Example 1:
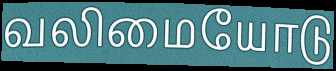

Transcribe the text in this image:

வலிமையோடு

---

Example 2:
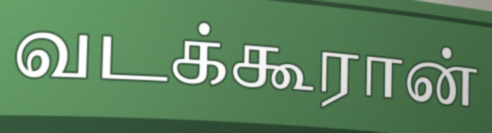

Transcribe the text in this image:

வடக்கூரான்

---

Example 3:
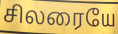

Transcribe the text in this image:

சிலரையே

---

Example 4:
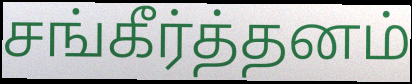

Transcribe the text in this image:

சங்கீர்த்தனம்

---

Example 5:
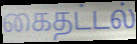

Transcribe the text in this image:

கைதட்டல்